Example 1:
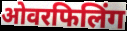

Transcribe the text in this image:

ओवरफिलिंग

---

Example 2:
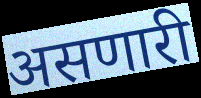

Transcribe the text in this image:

असणारी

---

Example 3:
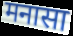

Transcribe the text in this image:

मनासा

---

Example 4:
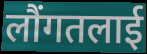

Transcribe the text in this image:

लौंगतलाई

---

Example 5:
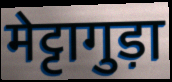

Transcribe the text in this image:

मेट्टागुड़ा